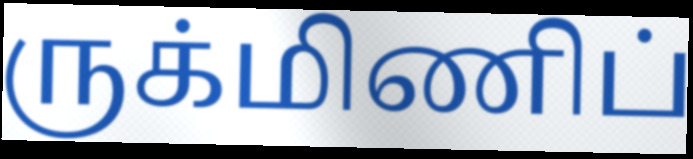
ருக்மிணிப்